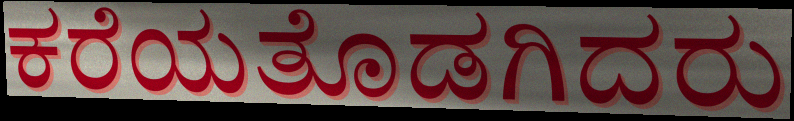
ಕರೆಯತೊಡಗಿದರು